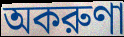
অকরুণা